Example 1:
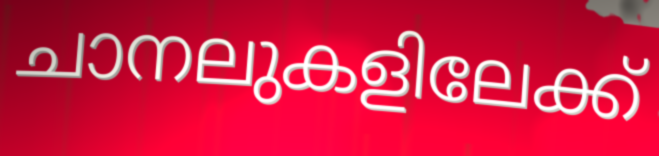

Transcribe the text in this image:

ചാനലുകളിലേക്ക്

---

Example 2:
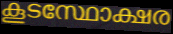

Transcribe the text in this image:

കൂടസ്ഥോക്ഷര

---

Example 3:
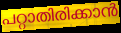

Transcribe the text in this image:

പറ്റാതിരിക്കാൻ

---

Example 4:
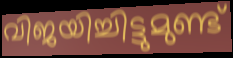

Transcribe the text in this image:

വിജയിച്ചിട്ടുമുണ്ട്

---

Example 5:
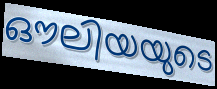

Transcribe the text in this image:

ഔലിയയുടെ